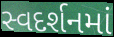
સ્વદર્શનમાં